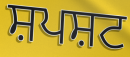
ਸ਼ਪਸ਼ਟ